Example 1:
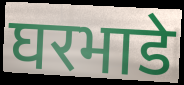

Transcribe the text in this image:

घरभाडे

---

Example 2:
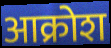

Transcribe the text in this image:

आक्रोश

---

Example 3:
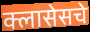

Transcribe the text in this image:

क्लासेसचे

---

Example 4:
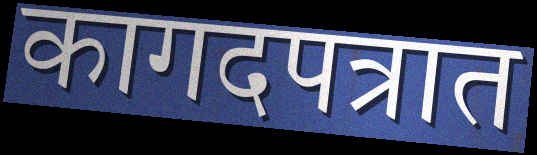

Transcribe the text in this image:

कागदपत्रात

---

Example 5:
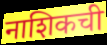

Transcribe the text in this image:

नाशिकची